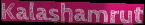
Kalashamrut